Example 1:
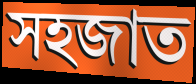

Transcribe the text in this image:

সহজাত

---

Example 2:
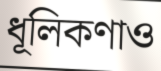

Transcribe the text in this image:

ধূলিকণাও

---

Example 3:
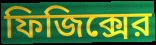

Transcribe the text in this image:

ফিজিক্সের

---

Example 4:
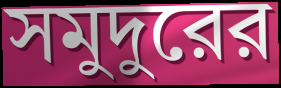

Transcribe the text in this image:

সমুদুরের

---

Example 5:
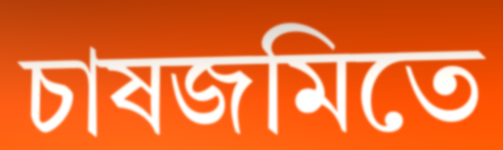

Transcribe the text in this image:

চাষজমিতে